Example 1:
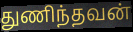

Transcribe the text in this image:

துணிந்தவன்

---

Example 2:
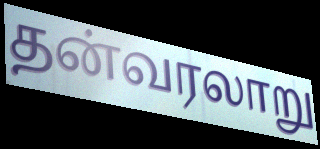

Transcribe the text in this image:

தன்வரலாறு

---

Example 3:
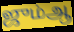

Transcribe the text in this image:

ஜும்ஆ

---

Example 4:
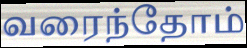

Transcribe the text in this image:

வரைந்தோம்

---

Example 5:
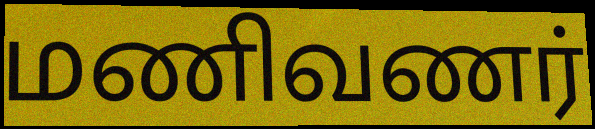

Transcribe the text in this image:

மணிவணர்